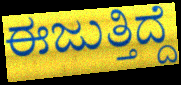
ಈಜುತ್ತಿದ್ದೆ